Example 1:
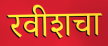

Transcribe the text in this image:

रवीशचा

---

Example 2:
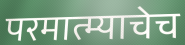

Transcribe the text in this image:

परमात्म्याचेच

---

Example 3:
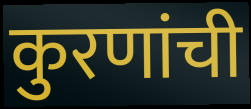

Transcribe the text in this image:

कुरणांची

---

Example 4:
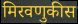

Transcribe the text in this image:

मिरवणुकीस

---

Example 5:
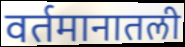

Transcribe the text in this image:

वर्तमानातली